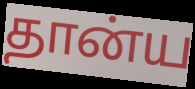
தான்ய